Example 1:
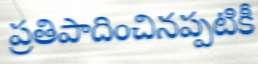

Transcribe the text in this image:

ప్రతిపాదించినప్పటికీ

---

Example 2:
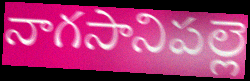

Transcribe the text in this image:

నాగసానిపల్లె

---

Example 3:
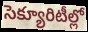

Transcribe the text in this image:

సెక్యూరిటీల్లో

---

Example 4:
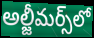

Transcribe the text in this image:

అల్జీమర్స్‌లో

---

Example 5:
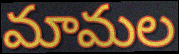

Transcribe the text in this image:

మామల